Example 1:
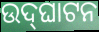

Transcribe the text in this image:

ଉଦ୍‌ଘାଟନ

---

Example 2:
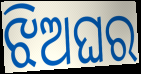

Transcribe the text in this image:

ଝିଅଘର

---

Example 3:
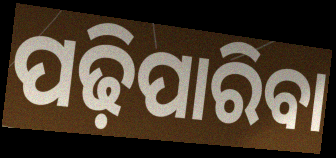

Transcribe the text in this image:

ପଢ଼ିପାରିବା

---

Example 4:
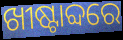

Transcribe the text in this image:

ଖୀଷ୍ଟାବ୍ଦରେ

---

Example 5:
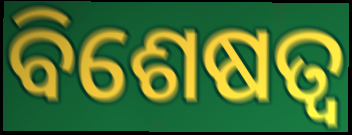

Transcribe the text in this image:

ବିଶେଷତ୍ଵ